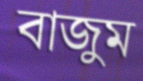
বাজুম